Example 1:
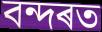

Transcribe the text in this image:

বন্দৰত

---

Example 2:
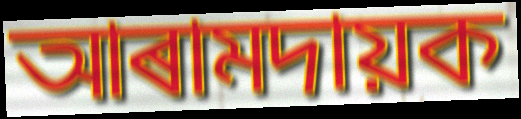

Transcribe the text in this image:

আৰামদায়ক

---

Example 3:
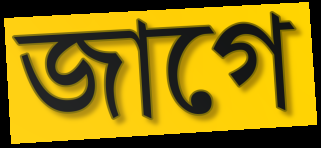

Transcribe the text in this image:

জাগে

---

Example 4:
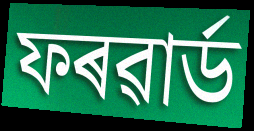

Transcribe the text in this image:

ফৰৱাৰ্ড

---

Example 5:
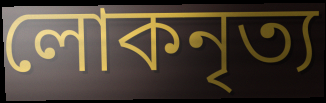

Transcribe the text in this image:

লোকনৃত্য